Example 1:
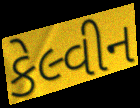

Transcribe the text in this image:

કેલ્વીન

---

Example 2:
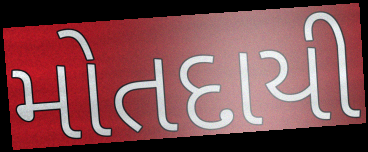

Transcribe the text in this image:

મોતદાયી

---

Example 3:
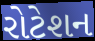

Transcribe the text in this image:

રોટેશન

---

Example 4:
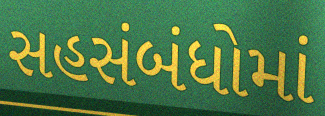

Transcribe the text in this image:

સહસંબંધોમાં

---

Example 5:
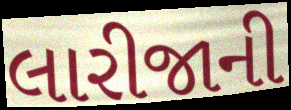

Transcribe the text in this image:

લારીજાની